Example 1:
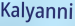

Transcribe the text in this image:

Kalyanni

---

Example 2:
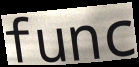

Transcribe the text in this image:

func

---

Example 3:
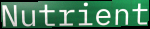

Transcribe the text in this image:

Nutrient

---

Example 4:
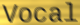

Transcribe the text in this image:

Vocal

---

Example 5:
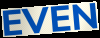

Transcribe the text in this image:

EVEN